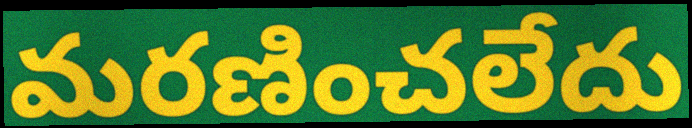
మరణించలేదు